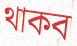
থাকব